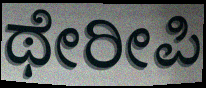
ಥೇರೀಪಿ